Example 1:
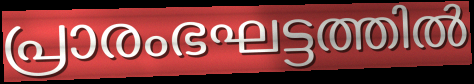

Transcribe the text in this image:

പ്രാരംഭഘട്ടത്തിൽ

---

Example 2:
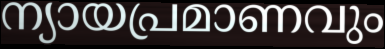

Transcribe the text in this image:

ന്യായപ്രമാണവും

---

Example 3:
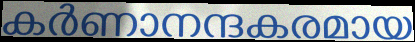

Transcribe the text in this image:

കർണാനന്ദകരമായ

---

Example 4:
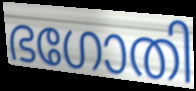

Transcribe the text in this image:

ഭഗോതി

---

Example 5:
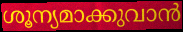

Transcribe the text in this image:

ശൂന്യമാക്കുവാൻ